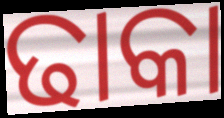
ଢାକା